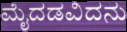
ಮೈದಡವಿದನು